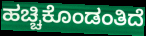
ಹಚ್ಚಿಕೊಂಡಂತಿದೆ